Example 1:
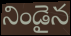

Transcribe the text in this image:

నిండైన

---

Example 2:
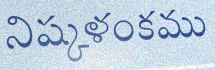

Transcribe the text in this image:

నిష్కళంకము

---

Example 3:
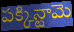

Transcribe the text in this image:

పక్కిన్టామె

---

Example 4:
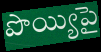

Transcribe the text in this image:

పొయ్యిపై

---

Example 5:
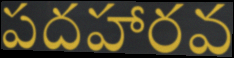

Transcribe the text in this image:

పదహారవ